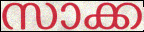
സാക്ക